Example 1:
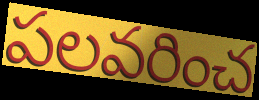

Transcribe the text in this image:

పలవరించ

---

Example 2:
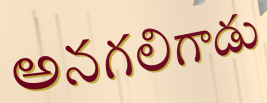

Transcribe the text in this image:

అనగలిగాడు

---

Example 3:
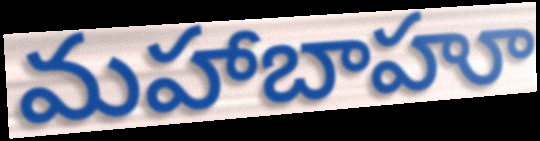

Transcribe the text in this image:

మహాబాహూ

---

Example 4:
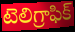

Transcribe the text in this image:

టెలిగ్రాఫిక్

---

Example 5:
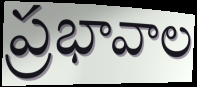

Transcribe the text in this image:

ప్రభావాల